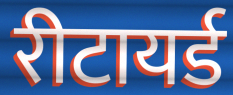
रीटायर्ड